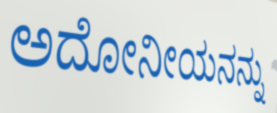
ಅದೋನೀಯನನ್ನು